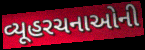
વ્યૂહરચનાઓની